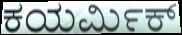
ಕಯರ್ಮಿಕ್